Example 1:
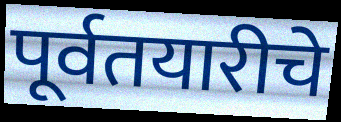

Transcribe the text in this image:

पूर्वतयारीचे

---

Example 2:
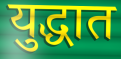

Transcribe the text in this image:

युद्धात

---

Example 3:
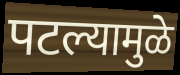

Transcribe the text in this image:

पटल्यामुळे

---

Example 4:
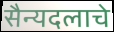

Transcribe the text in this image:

सैन्यदलाचे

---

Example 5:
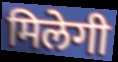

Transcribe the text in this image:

मिलेगी